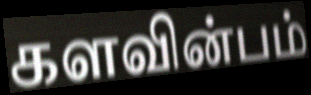
களவின்பம்